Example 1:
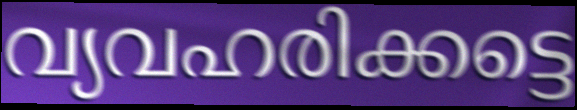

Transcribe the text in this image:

വ്യവഹരിക്കട്ടെ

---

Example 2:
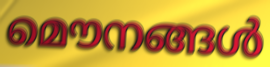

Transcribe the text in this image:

മൌനങ്ങൾ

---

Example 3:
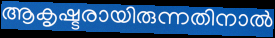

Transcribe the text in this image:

ആകൃഷ്ടരായിരുന്നതിനാൽ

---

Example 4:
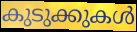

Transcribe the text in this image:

കുടുക്കുകൾ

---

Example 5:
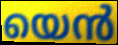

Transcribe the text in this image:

യെൻ